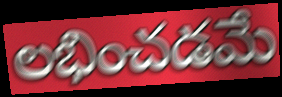
లభించడమే